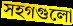
সহগগুলো